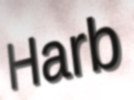
Harb